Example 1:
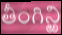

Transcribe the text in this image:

తీంగిన్ఱి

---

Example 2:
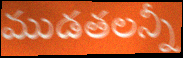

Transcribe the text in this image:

ముడతలన్నీ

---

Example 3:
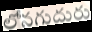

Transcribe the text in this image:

లోనగుదురు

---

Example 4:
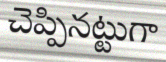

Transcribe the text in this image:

చెప్పినట్టుగా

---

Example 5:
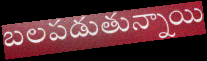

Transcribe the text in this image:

బలపడుతున్నాయి